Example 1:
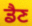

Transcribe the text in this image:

ਡੈਣ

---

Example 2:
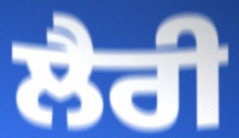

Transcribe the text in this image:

ਲੈਰੀ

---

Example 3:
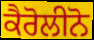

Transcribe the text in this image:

ਕੈਰੋਲੀਨੋ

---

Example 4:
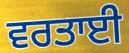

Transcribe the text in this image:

ਵਰਤਾਈ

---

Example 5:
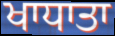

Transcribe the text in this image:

ਖਾਧਾਤਾ